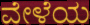
ವೇಳೆಯ